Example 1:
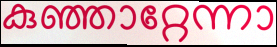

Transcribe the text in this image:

കുഞ്ഞാറ്റേന്നാ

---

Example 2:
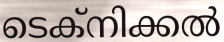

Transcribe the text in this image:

ടെക്നിക്കൽ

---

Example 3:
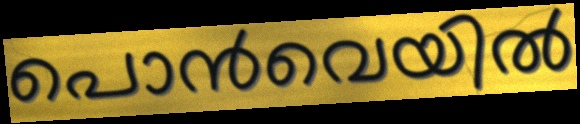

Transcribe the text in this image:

പൊൻവെയിൽ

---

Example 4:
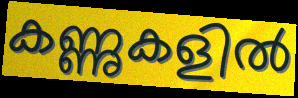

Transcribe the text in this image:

കണ്ണുകളിൽ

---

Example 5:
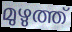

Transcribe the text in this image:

മുഴുത്ത്